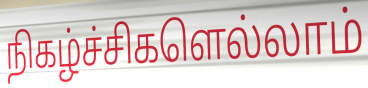
நிகழ்ச்சிகளெல்லாம்